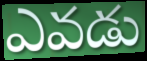
ఎవడు